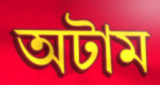
অটাম